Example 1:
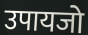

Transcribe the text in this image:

उपायजो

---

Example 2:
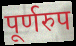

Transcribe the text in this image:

पूर्णरुप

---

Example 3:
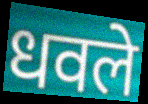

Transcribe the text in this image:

धवले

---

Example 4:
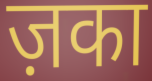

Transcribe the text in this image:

ज़का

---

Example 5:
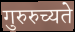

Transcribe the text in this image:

गुरुरुच्यते